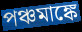
পঞ্চমাঙ্কে